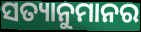
ସତ୍ୟାନୁମାନର